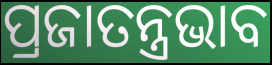
ପ୍ରଜାତନ୍ତ୍ରଭାବ